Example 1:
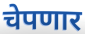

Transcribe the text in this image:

चेपणार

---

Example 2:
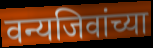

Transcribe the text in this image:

वन्यजिवांच्या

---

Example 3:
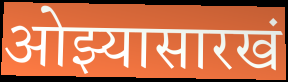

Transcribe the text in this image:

ओझ्यासारखं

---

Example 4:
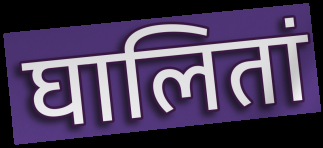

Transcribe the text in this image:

घालितां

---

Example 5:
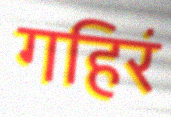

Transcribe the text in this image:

गहिरं